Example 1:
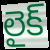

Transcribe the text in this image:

లైక్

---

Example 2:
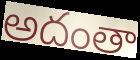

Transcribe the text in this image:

అదంతా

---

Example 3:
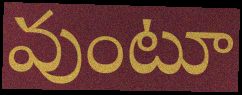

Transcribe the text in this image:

వుంటూ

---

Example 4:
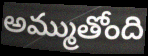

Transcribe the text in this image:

అమ్ముతోంది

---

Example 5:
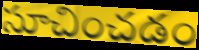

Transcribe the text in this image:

సూచించడం